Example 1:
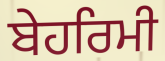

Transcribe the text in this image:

ਬੇਹਰਿਮੀ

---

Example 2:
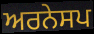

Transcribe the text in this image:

ਅਰਨੇਸਪ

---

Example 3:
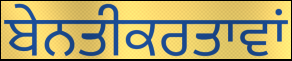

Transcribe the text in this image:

ਬੇਨਤੀਕਰਤਾਵਾਂ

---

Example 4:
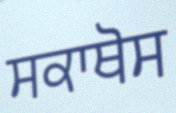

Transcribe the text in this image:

ਸਕਾਥੋਸ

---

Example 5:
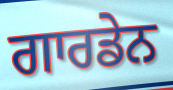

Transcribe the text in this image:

ਗਾਰਡੇਨ